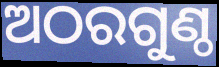
ଅଠରଗୁଣ୍ଠ